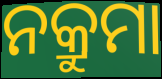
ନକ୍ରୁମା